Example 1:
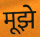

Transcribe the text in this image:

मूझे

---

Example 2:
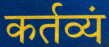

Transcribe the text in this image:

कर्तव्यं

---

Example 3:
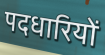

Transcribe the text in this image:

पदधारियों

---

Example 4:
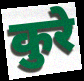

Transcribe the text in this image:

कुरे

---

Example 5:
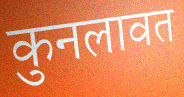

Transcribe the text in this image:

कुनलावत